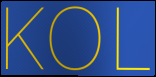
KOL